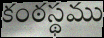
కంఠస్థము